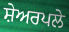
ਸ਼ੇਅਰਪਲੇ